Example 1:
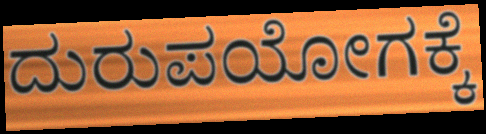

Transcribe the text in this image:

ದುರುಪಯೋಗಕ್ಕೆ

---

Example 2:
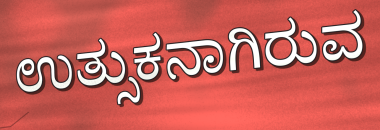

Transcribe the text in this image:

ಉತ್ಸುಕನಾಗಿರುವ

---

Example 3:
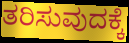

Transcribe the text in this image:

ತರಿಸುವುದಕ್ಕೆ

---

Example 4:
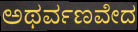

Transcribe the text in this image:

ಅಥರ್ವಣವೇದ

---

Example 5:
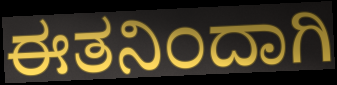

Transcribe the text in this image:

ಈತನಿಂದಾಗಿ